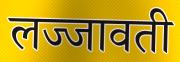
लज्जावती